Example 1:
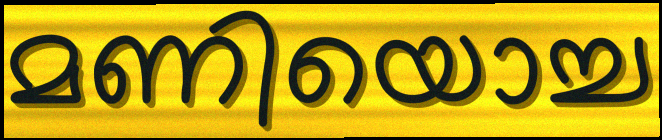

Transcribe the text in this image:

മണിയൊച്ച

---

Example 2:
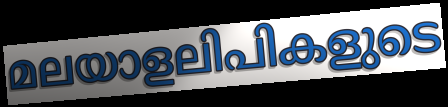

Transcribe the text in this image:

മലയാളലിപികളുടെ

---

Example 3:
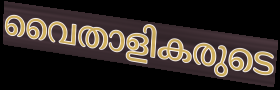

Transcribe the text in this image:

വൈതാളികരുടെ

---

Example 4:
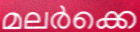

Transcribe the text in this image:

മലർക്കെ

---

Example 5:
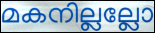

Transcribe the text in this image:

മകനില്ലല്ലോ